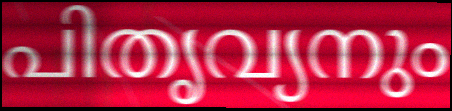
പിതൃവ്യനും